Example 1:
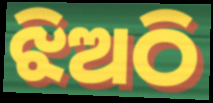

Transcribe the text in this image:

ଝିଅଠି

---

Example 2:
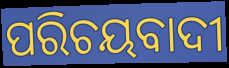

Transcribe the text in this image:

ପରିଚୟବାଦୀ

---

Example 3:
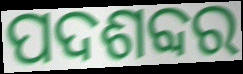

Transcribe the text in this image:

ପଦଶବ୍ଦର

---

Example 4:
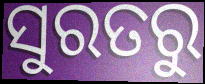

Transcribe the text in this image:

ସୁରତରୁ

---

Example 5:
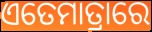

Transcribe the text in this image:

ଏତେମାତ୍ରାରେ